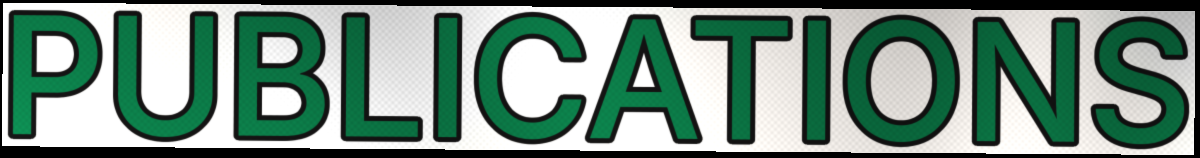
PUBLICATIONS